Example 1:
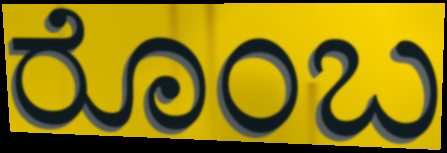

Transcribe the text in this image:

ರೊಂಬ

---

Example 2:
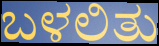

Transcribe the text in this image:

ಬಳಲಿತು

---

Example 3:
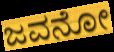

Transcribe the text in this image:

ಜವನೋ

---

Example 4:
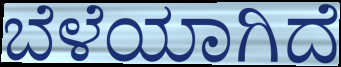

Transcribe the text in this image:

ಬೆಳೆಯಾಗಿದೆ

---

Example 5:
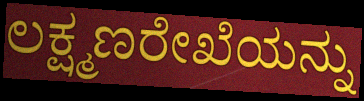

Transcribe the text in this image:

ಲಕ್ಷ್ಮಣರೇಖೆಯನ್ನು